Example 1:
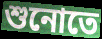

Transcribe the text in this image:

শুনোতে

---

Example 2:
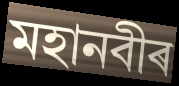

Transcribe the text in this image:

মহানবীৰ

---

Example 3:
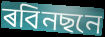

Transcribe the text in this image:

ৰবিনছনে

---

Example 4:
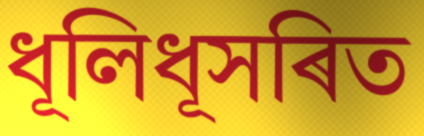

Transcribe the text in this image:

ধূলিধূসৰিত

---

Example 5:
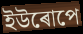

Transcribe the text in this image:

ইউৰোপে